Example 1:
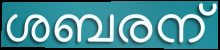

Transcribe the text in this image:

ശബരന്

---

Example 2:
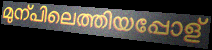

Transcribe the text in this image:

മുന്പിലെത്തിയപ്പോള്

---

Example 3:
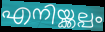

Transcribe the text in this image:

എനിയ്ക്കല്പം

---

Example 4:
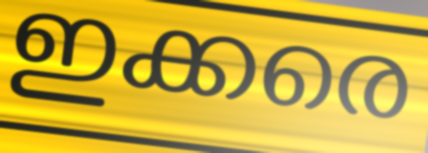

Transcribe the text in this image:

ഇക്കരെ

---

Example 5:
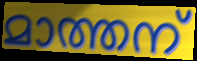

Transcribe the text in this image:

മാത്തന്